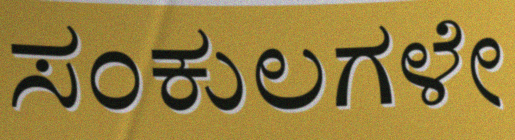
ಸಂಕುಲಗಳೇ